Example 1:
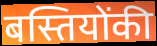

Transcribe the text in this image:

बस्तियोंकी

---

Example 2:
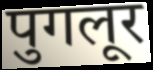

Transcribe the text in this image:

पुगलूर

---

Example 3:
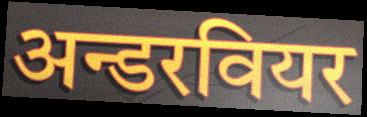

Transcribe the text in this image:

अन्डरवियर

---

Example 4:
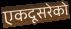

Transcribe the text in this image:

एकदूसरेको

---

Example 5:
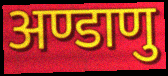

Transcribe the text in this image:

अण्डाणु